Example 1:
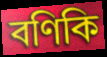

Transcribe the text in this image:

বণিকি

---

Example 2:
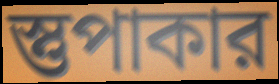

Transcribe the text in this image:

স্তুপাকার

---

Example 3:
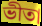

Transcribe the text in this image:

ভীতা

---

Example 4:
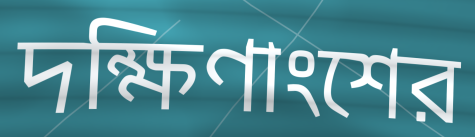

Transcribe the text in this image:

দক্ষিণাংশের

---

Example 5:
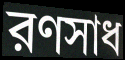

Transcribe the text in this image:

রণসাধ